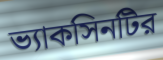
ভ্যাকসিনটির